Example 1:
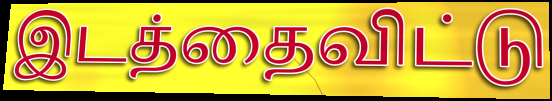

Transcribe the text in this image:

இடத்தைவிட்டு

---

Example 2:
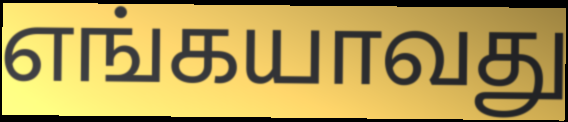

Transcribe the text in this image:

எங்கயாவது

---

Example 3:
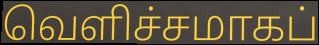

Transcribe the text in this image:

வெளிச்சமாகப்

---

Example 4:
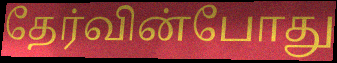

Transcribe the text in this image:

தேர்வின்போது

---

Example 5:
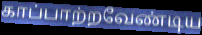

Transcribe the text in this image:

காப்பாற்றவேண்டிய